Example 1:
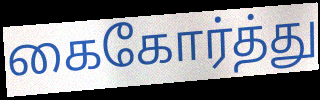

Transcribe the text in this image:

கைகோர்த்து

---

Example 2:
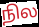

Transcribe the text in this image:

நில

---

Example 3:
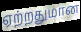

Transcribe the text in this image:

ஏற்றதுமான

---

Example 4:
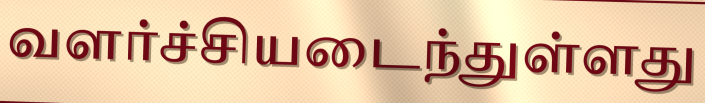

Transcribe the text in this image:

வளர்ச்சியடைந்துள்ளது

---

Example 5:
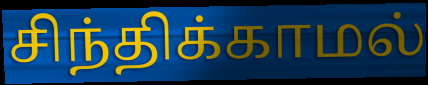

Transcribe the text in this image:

சிந்திக்காமல்